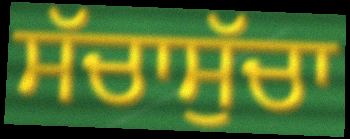
ਸੱਚਾਸੁੱਚਾ